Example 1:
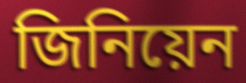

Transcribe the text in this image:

জিনিয়েন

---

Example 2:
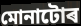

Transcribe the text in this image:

মোনাটোৰ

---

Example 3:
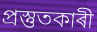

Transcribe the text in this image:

প্ৰস্তুতকাৰী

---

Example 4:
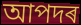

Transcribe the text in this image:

আপদৰ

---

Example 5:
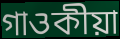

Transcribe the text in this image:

গাওকীয়া